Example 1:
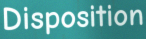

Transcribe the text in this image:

Disposition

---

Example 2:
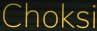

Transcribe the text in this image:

Choksi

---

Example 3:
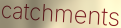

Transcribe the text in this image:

catchments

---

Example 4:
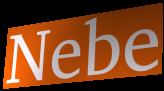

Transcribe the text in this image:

Nebe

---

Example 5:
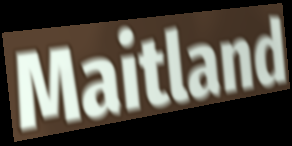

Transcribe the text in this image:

Maitland